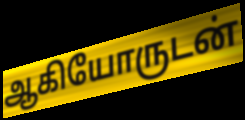
ஆகியோருடன்